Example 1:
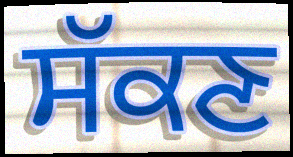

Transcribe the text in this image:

ਸੱਕਣ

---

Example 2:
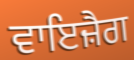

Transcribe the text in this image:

ਵਾਇਜ਼ੈਗ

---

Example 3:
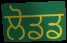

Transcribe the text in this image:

ਲੋਡਡ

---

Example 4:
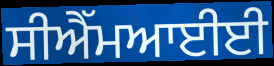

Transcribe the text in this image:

ਸੀਐੱਮਆਈਈ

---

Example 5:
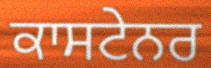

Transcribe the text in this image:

ਕਾਸਟੇਨਰ